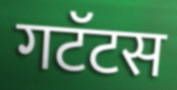
गटॅटस